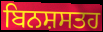
ਬਿਨਸ਼ਸਤਹ